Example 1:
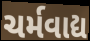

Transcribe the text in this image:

ચર્મવાદ્ય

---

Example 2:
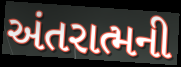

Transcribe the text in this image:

અંતરાત્મની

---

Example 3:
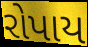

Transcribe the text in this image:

રોપાય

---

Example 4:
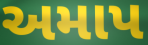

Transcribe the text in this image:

અમાપ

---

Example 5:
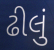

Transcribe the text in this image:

ઢીલું